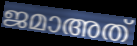
ജമാഅത്